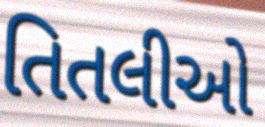
તિતલીઓ